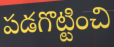
పడగొట్టించి